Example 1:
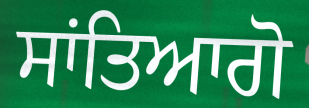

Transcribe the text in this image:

ਸਾਂਤਿਆਗੋ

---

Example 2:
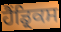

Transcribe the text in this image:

ਹੈਂਡ੍ਰਿਕਸ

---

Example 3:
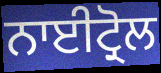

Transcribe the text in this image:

ਨਾਈਟ੍ਰੋਲ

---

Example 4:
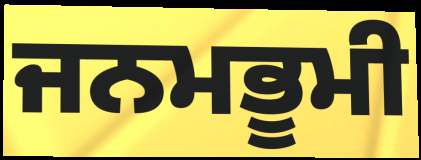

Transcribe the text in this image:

ਜਨਮਭੂਮੀ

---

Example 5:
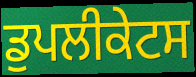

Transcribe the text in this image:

ਡੁਪਲੀਕੇਟਸ